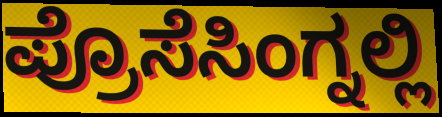
ಪ್ರೊಸೆಸಿಂಗ್ನಲ್ಲಿ